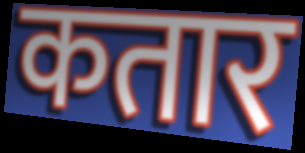
कतार